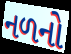
નળનો